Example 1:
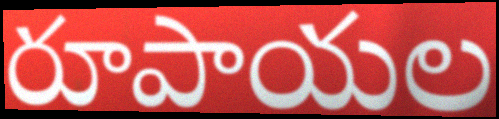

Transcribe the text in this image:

రూపాయల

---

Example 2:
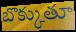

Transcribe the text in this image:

బొక్కుతూ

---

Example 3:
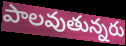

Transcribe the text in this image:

పాలవుతున్నరు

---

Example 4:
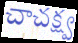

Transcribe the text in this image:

చాచక్ష్వ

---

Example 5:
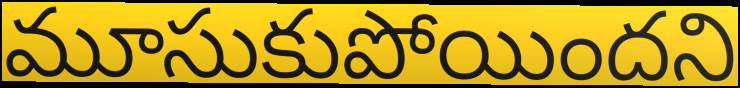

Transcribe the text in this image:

మూసుకుపోయిందని